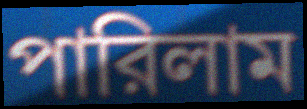
পারিলাম